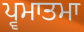
ਪ੍ਵਮਾਤਮਾ